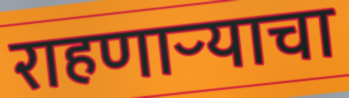
राहणाऱ्याचा